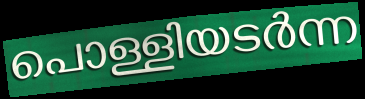
പൊള്ളിയടർന്ന